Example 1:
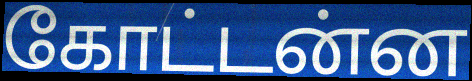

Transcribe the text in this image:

கோட்டன்ன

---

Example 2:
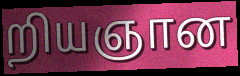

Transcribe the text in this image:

றியஞான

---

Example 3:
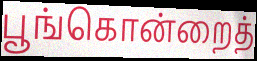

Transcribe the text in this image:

பூங்கொன்றைத்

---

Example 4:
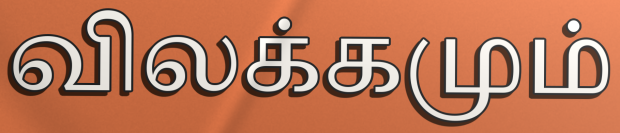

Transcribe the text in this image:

விலக்கமும்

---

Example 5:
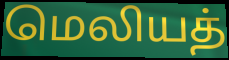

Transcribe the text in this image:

மெலியத்